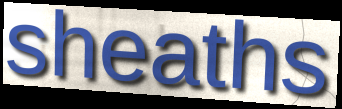
sheaths